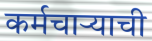
कर्मचार्‍याची